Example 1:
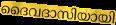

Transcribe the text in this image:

ദൈവദാസിയായി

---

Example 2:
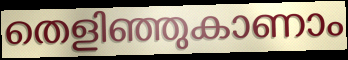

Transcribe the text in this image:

തെളിഞ്ഞുകാണാം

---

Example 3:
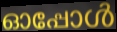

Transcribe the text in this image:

ഓപ്പോൾ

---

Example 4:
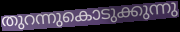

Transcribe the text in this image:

തുറന്നുകൊടുക്കുന്നു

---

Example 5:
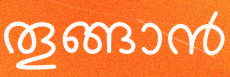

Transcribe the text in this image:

തൂങ്ങാൻ